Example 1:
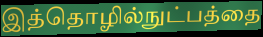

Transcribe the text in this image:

இத்தொழில்நுட்பத்தை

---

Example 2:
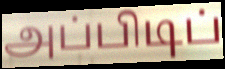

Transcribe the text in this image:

அப்பிடிப்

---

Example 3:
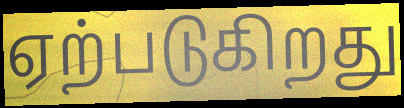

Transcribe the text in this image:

ஏற்படுகிறது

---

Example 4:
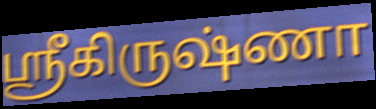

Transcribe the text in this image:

ஸ்ரீகிருஷ்ணா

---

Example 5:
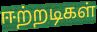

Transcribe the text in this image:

ஈற்றடிகள்